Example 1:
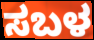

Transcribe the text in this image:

ಸಬಳ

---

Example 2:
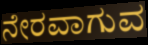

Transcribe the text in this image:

ನೇರವಾಗುವ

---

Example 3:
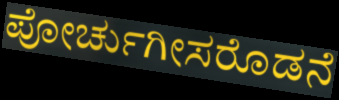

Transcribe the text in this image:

ಪೋರ್ಚುಗೀಸರೊಡನೆ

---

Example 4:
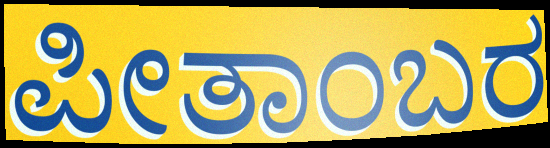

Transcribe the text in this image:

ಪೀತಾಂಬರ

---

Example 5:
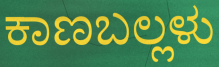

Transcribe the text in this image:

ಕಾಣಬಲ್ಲಳು